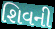
શિવની